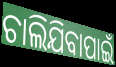
ଚାଲିଯିବାପାଇଁ